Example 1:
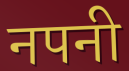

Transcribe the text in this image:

नपनी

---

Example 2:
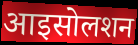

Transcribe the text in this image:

आइसोलशन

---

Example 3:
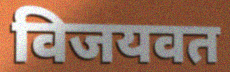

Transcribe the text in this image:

विजयवत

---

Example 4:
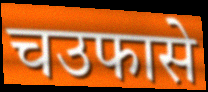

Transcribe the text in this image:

चउफासे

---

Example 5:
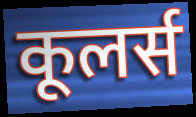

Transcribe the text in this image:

कूलर्स